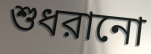
শুধরানো